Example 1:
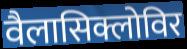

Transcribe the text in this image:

वैलासिक्लोविर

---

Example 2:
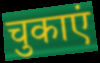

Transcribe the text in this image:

चुकाएं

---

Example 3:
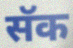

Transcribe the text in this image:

सॅक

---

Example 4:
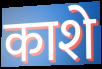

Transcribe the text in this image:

काशे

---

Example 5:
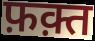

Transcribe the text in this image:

फ़क़्त